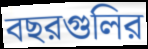
বছরগুলির